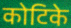
कोटिके